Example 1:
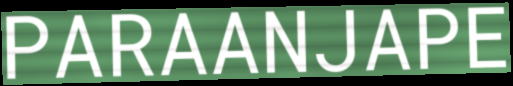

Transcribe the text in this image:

PARAANJAPE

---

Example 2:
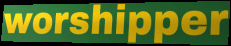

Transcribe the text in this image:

worshipper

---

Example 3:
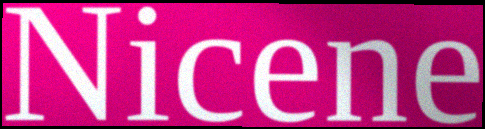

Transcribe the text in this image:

Nicene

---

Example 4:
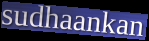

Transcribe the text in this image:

sudhaankan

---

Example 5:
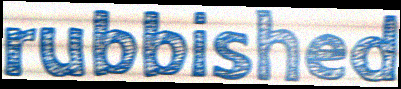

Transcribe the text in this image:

rubbished